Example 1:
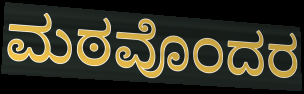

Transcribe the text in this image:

ಮಠವೊಂದರ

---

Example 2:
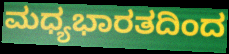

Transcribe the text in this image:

ಮಧ್ಯಭಾರತದಿಂದ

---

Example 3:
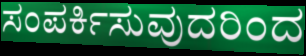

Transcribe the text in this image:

ಸಂಪರ್ಕಿಸುವುದರಿಂದ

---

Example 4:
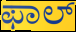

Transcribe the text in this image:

ಫಾಲ್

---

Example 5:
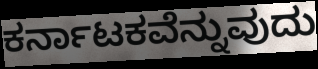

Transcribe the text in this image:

ಕರ್ನಾಟಕವೆನ್ನುವುದು